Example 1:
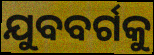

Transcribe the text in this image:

ଯୁବବର୍ଗକୁ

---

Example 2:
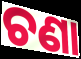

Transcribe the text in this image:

ଚଣା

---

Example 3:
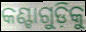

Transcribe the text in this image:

କଣ୍ଟାଗୁଡ଼ିକୁ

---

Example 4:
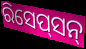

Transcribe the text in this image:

ରିସେପ୍‍ସନ୍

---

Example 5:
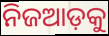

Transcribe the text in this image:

ନିଜଆଡ଼କୁ